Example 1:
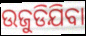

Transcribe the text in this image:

ଉଜୁଡିଯିବା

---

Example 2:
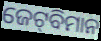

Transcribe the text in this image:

ଜେଟ୍‍ବିମାନ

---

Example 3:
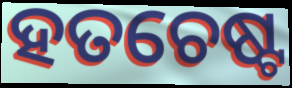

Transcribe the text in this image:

ହତଚେଷ୍ଟ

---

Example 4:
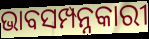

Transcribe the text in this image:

ଭାବସମ୍ପନ୍ନକାରୀ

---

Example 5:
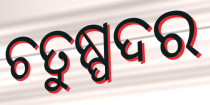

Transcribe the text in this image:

ଚତୁଷ୍ପଦର